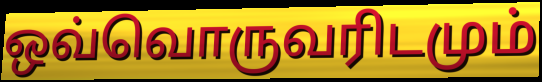
ஒவ்வொருவரிடமும்